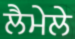
ਲੈਮੇਲੇ